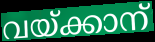
വയ്ക്കാന്